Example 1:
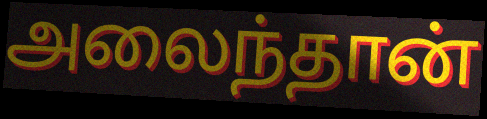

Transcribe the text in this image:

அலைந்தான்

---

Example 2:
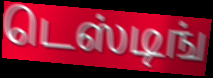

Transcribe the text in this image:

டெஸ்டிங்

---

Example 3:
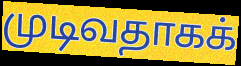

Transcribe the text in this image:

முடிவதாகக்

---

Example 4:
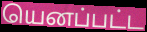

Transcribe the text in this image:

யெனப்பட்ட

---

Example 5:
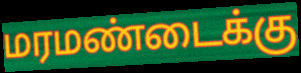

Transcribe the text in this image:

மரமண்டைக்கு